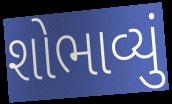
શોભાવ્યું